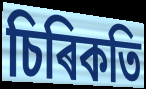
চিৰিকতি